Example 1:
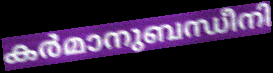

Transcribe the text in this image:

കർമാനുബന്ധീനി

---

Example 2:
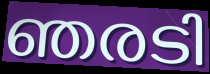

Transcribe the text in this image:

ഞരടി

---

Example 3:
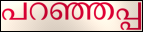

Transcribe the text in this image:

പറഞ്ഞപ്പ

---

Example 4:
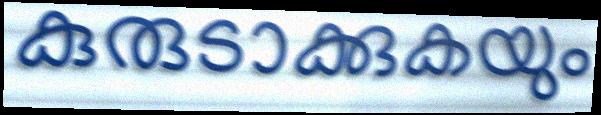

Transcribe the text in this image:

കുരുടാക്കുകയും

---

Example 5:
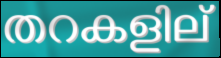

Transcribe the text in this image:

തറകളില്